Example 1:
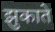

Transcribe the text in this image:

झुकाते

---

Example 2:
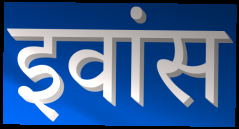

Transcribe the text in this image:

इवांस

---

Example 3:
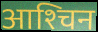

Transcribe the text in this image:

आश्चिन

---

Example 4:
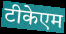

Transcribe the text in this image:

टीकेएम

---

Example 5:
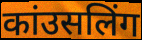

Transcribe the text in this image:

कांउसलिंग